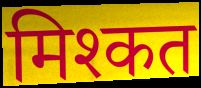
मिश्कत